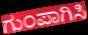
ಗುಂಪಾಗಿಸಿ